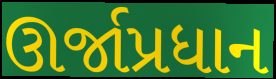
ઊર્જાપ્રધાન